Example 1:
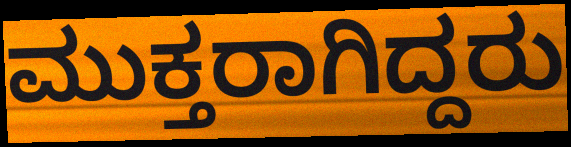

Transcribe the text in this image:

ಮುಕ್ತರಾಗಿದ್ದರು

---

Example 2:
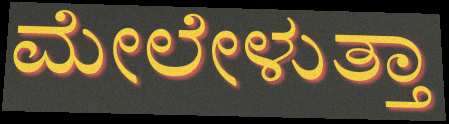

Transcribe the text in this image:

ಮೇಲೇಳುತ್ತಾ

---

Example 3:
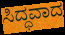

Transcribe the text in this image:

ಸಿದ್ಧವಾದ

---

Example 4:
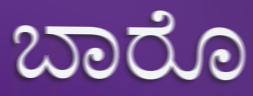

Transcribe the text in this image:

ಬಾರೊ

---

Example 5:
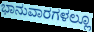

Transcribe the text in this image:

ಭಾನುವಾರಗಳಲ್ಲೂ